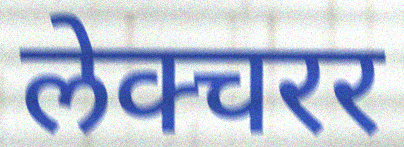
लेक्चरर